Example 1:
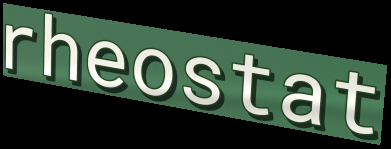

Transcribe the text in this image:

rheostat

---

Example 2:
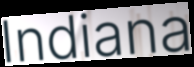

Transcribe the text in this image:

Indiana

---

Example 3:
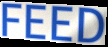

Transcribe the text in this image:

FEED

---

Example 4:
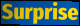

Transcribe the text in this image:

Surprise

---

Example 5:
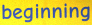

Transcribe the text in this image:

beginning